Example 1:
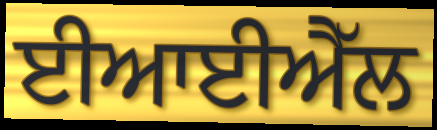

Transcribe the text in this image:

ਈਆਈਐੱਲ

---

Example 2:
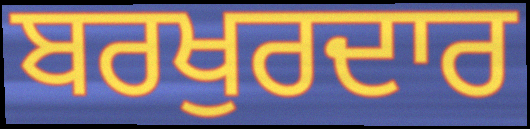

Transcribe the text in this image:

ਬਰਖੁਰਦਾਰ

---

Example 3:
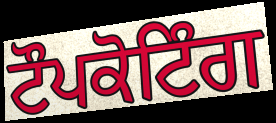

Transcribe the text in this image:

ਟੌਪਕੋਟਿੰਗ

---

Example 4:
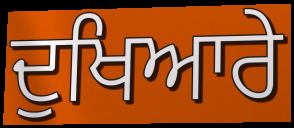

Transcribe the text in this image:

ਦੁਖਿਆਰੇ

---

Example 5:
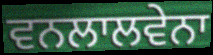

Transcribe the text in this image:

ਵਨਲਾਲਵੇਨਾ